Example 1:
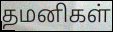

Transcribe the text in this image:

தமனிகள்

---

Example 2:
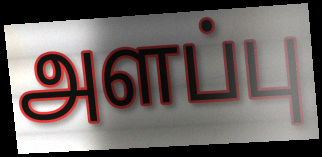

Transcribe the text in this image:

அளப்பு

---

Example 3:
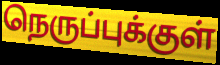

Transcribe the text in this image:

நெருப்புக்குள்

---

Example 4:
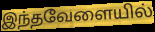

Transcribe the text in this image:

இந்தவேளையில்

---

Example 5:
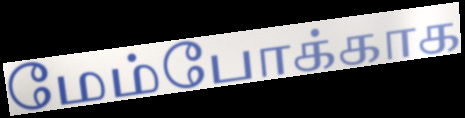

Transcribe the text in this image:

மேம்போக்காக